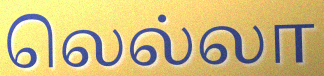
லெல்லா